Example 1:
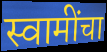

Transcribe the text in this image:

स्वामींचा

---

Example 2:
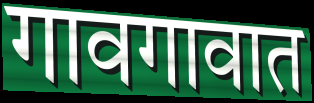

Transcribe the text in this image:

गावगावात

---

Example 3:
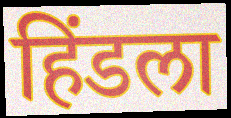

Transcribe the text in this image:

हिंडला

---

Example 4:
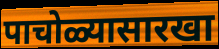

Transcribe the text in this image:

पाचोळ्यासारखा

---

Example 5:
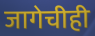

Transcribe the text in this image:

जागेचीही